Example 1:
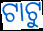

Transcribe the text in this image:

ଟାଟୁ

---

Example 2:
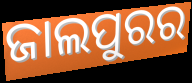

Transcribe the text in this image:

ଜାଲପୁରର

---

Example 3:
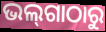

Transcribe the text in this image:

ଭଲ୍‌ଗାଠାରୁ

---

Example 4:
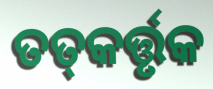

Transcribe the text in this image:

ତତ୍‌କର୍ତ୍ତୃକ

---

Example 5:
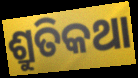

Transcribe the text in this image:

ଶ୍ରୁତିକଥା